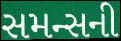
સમન્સની